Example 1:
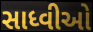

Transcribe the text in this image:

સાધ્વીઓ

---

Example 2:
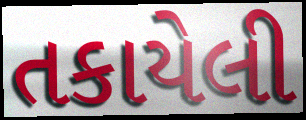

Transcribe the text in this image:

તકાયેલી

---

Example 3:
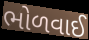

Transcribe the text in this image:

ભોળવાઈ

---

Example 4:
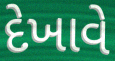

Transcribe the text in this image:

દેખાવે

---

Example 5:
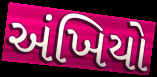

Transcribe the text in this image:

અંખિયો